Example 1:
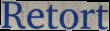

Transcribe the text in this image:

Retort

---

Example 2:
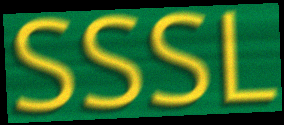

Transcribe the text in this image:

SSSL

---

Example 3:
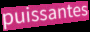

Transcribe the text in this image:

puissantes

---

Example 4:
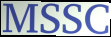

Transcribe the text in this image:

MSSC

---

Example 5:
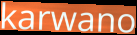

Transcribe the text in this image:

karwano